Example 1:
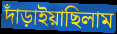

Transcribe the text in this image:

দাঁড়াইয়াছিলাম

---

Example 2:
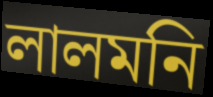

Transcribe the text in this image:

লালমনি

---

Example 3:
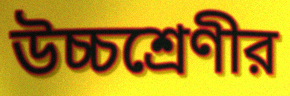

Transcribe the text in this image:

উচ্চশ্রেণীর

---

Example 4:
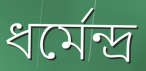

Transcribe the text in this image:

ধর্মেন্দ্র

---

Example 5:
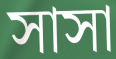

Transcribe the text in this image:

সাসা